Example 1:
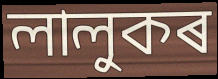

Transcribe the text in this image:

লালুকৰ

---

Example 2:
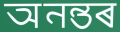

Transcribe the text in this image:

অনন্তৰ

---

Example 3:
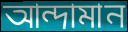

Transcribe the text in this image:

আন্দামান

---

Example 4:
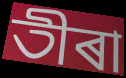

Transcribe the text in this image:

তীৰা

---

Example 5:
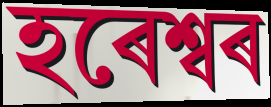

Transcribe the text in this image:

হৰেশ্বৰ